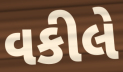
વકીલે